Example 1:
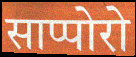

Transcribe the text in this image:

साप्पोरो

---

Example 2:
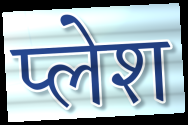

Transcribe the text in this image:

प्लेश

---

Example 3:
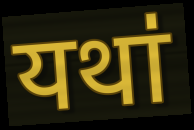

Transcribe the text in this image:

यथा॑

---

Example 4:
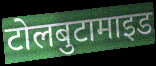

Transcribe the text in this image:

टोलबुटामाइड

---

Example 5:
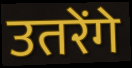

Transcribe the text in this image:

उतरेंगे